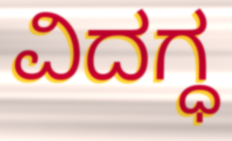
ವಿದಗ್ಧ